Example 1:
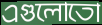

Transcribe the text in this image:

এগুলোতো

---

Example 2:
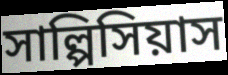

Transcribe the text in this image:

সাল্পিসিয়াস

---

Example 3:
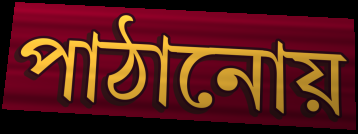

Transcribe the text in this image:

পাঠানোয়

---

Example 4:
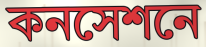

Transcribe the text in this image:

কনসেশনে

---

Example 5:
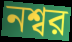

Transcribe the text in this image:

নশ্বর